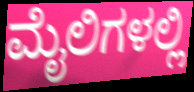
ಮೈಲಿಗಳಲ್ಲಿ